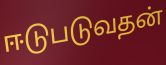
ஈடுபடுவதன்